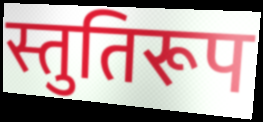
स्तुतिरूप